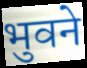
भुवने